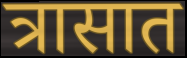
त्रासात